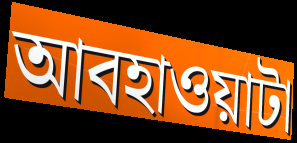
আবহাওয়াটা